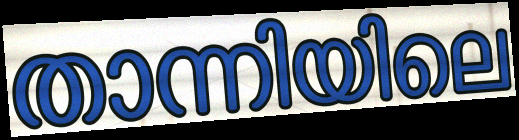
താന്നിയിലെ